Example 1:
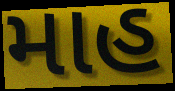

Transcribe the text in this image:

માહ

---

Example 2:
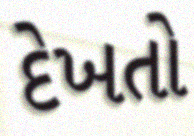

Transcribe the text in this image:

દેખતો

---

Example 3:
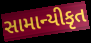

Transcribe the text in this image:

સામાન્યીકૃત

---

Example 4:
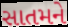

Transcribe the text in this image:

સાતમને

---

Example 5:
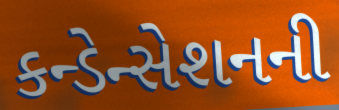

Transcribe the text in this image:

કન્ડેન્સેશનની